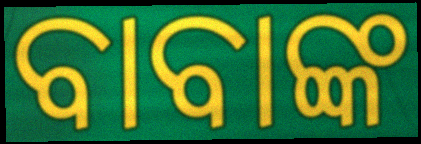
ବାବାଙ୍କ